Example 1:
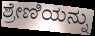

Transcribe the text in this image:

ಶ್ರೇಣಿಯನ್ನು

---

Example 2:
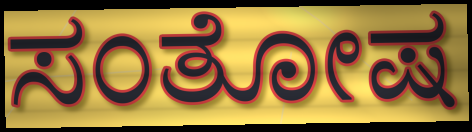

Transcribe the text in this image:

ಸಂತೋಷ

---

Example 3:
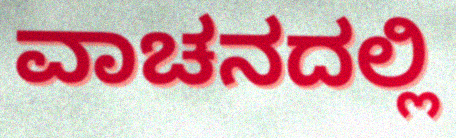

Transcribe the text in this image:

ವಾಚನದಲ್ಲಿ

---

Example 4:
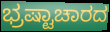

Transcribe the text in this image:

ಭ್ರಷ್ಟಾಚಾರದ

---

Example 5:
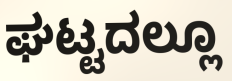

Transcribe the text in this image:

ಘಟ್ಟದಲ್ಲೂ